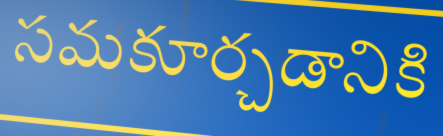
సమకూర్చడానికి